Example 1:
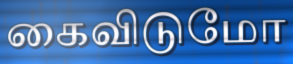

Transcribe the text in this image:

கைவிடுமோ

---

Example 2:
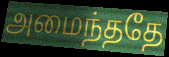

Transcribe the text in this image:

அமைந்ததே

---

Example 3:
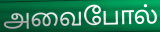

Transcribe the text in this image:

அவைபோல்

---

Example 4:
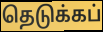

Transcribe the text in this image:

தெடுக்கப்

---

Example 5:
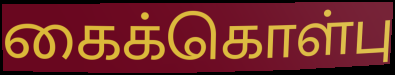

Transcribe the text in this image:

கைக்கொள்பு